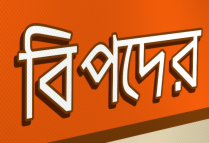
বিপদের